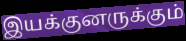
இயக்குனருக்கும்